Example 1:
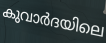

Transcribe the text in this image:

കുവാർദയിലെ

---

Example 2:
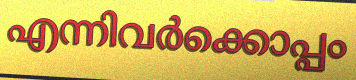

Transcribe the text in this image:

എന്നിവർക്കൊപ്പം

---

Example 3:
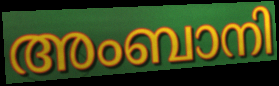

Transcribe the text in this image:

അംബാനി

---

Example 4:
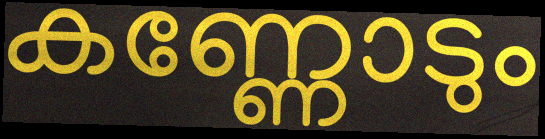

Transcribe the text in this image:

കണ്ണോടും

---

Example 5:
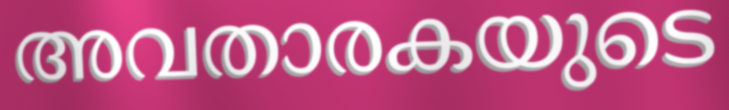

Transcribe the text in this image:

അവതാരകയുടെ